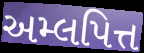
અમ્લપિત્ત